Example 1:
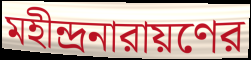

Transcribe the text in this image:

মহীন্দ্রনারায়ণের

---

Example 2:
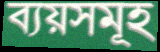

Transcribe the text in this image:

ব্যয়সমূহ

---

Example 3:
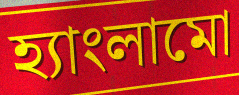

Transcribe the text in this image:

হ্যাংলামো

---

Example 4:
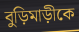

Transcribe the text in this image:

বুড়িমাড়ীকে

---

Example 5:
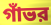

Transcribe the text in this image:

গাঁভর